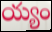
య్యం